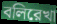
বলিরেখা